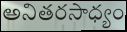
అనితరసాధ్యం